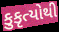
કુકૃત્યોથી